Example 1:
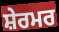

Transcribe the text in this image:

ਸ਼ੇਰਮਰ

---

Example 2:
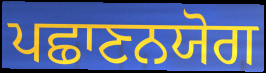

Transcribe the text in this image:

ਪਛਾਣਨਯੋਗ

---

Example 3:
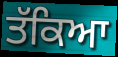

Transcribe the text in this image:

ਤੱਕਿਆ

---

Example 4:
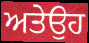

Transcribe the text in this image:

ਅਤੇਉਹ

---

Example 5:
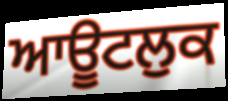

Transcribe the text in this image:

ਆਊਟਲੁਕ